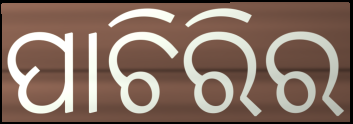
ପାଚିରିର